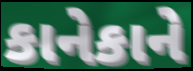
કાનેકાને